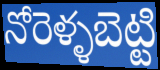
నోరెళ్ళబెట్టి